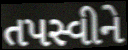
તપસ્વીને